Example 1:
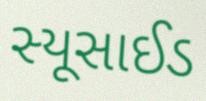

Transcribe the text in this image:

સ્યૂસાઈડ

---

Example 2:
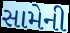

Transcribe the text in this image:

સામેની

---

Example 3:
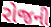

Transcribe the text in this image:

રોજની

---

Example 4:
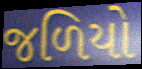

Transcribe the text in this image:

જળિયો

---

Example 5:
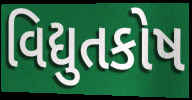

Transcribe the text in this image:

વિદ્યુતકોષ